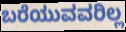
ಬರೆಯುವವರಿಲ್ಲ